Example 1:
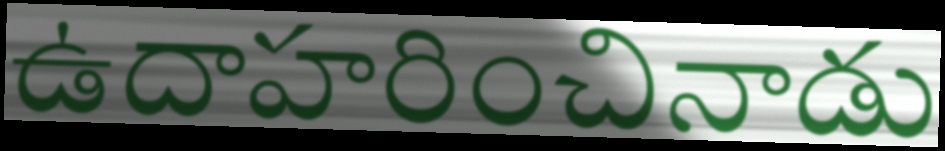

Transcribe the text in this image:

ఉదాహరించినాడు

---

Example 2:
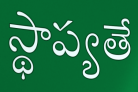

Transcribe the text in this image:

స్థాప్యతే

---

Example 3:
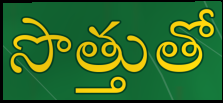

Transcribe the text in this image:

సొత్తుతో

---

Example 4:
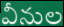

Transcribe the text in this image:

వీనుల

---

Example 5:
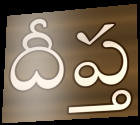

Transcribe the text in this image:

దీప్త